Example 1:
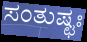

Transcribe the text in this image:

ಸಂತುಷ್ಟಃ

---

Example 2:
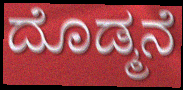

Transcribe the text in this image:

ದೊಡ್ಮನೆ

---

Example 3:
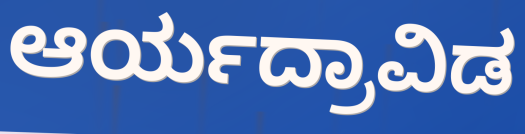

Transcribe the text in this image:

ಆರ್ಯದ್ರಾವಿಡ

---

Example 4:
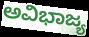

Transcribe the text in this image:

ಅವಿಭಾಜ್ಯ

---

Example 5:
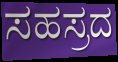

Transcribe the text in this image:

ಸಹಸ್ರದ